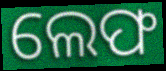
ଲେଫ